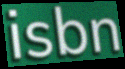
isbn